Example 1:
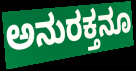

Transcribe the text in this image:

ಅನುರಕ್ತನೂ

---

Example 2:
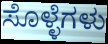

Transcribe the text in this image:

ಸೊಳ್ಳೆಗಳು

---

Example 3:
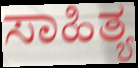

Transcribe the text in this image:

ಸಾಹಿತ್ಯ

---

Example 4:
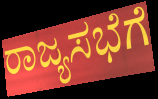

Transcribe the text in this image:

ರಾಜ್ಯಸಭೆಗೆ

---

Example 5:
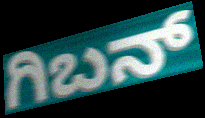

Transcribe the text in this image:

ಗಿಬನ್